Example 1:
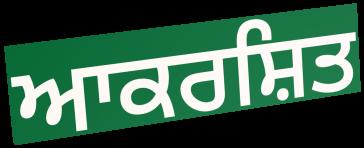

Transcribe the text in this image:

ਆਕਰਸ਼ਿਤ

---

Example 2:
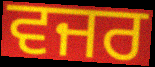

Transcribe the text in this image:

ਵਜਰ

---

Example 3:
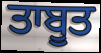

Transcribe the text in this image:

ਤਾਬੂਤ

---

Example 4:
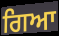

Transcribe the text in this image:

ਗਿਆ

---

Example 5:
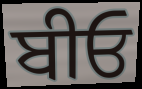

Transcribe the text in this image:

ਬੀਓ